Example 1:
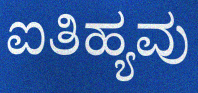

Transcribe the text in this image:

ಐತಿಹ್ಯವು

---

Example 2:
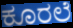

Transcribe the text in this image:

ಕೂರಲೆ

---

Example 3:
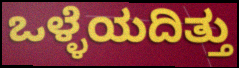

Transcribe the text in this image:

ಒಳ್ಳೆಯದಿತ್ತು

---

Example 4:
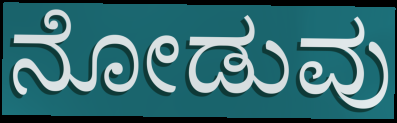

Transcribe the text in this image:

ನೋಡುವು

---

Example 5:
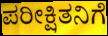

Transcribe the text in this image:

ಪರೀಕ್ಷಿತನಿಗೆ